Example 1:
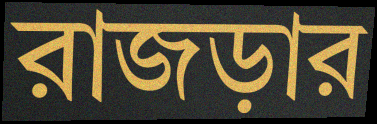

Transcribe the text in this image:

রাজড়ার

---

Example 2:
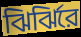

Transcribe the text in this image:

ঝির্ঝিরে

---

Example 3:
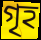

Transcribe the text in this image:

গৃহ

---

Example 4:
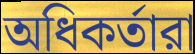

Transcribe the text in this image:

অধিকর্তারা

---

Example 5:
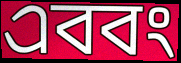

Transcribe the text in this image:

এববং